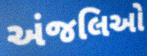
અંજલિઓ